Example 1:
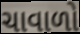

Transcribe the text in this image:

ચાવાળો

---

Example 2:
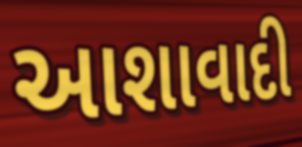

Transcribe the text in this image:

આશાવાદી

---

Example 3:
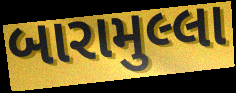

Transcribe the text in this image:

બારામુલ્લા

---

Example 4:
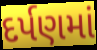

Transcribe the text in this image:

દર્પણમાં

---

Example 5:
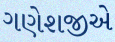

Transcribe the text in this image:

ગણેશજીએ